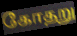
கோதறு